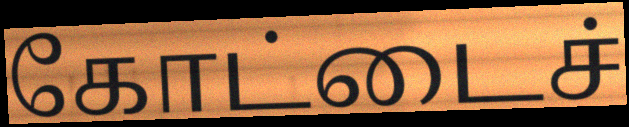
கோட்டைச்